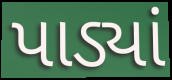
પાડ્યાં